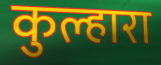
कुल्हारा